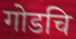
गोडचि